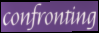
confronting